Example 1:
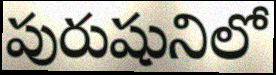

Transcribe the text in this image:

పురుషునిలో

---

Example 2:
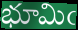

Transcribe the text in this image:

భూమిఁ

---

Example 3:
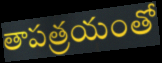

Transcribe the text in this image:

తాపత్రయంతో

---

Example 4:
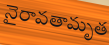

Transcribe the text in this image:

నైరావతామృత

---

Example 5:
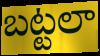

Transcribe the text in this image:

బట్టలా